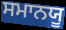
ਸਮਾਨਯੂ